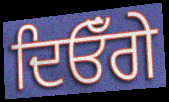
ਦਿਓਁਗੇ